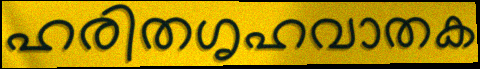
ഹരിതഗൃഹവാതക